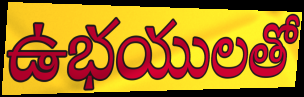
ఉభయులతో